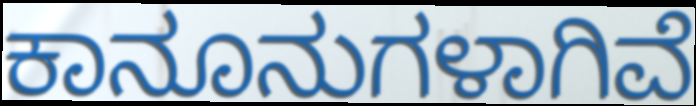
ಕಾನೂನುಗಳಾಗಿವೆ